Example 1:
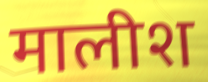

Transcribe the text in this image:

मालीश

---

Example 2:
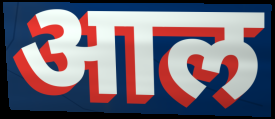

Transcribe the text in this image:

आल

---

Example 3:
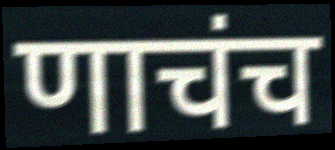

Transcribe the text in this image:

णाचंच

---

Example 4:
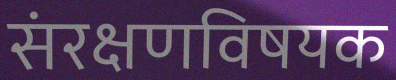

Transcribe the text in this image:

संरक्षणविषयक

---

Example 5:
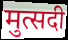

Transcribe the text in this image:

मुत्सदी